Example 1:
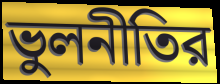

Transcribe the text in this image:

ভুলনীতির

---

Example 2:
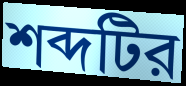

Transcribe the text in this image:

শব্দটির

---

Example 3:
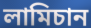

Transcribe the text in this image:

লামিচান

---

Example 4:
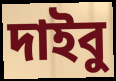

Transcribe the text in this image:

দাইবু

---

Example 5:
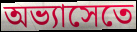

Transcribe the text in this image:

অভ্যাসেতে